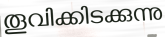
തൂവിക്കിടക്കുന്നു